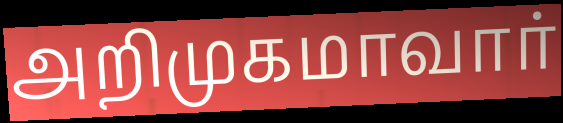
அறிமுகமாவார்